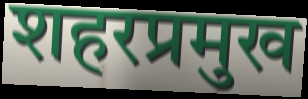
शहरप्रमुख